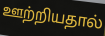
ஊற்றியதால்